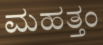
ಮಹತ್ತಂ